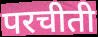
परचीती